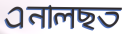
এনালছত